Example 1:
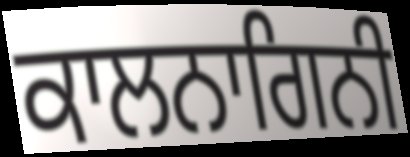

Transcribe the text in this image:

ਕਾਲਨਾਗਿਨੀ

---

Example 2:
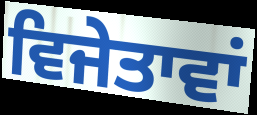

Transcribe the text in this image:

ਵਿਜੇਤਾਵਾਂ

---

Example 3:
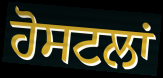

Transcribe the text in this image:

ਹੋਸਟਲਾਂ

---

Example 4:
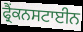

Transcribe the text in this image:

ਫ੍ਰੈਂਕਨਸਟਾਈਨ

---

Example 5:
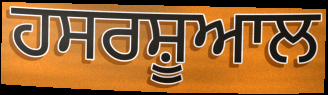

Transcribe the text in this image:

ਹਸਰਸ਼ੂਆਲ